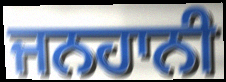
ਜਨਹਾਨੀ